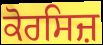
ਕੋਰਸਿਜ਼